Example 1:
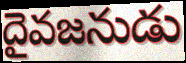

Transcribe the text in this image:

దైవజనుడు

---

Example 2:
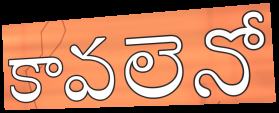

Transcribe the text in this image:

కావలెనో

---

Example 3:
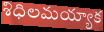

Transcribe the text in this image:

శిధిలమయ్యాక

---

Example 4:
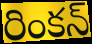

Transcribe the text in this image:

రింకన్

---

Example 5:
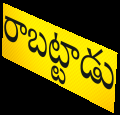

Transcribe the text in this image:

రాబట్టాడు